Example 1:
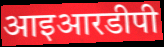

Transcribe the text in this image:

आइआरडीपी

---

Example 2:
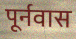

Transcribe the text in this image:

पूर्नवास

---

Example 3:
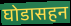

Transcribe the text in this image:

घोडासहन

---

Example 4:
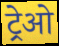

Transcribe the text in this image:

ट्रेओ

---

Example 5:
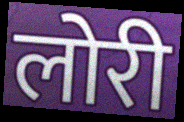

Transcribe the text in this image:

लोरी